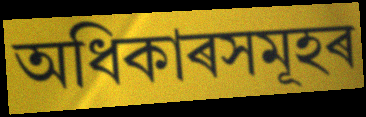
অধিকাৰসমূহৰ